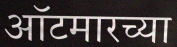
ऑटमारच्या